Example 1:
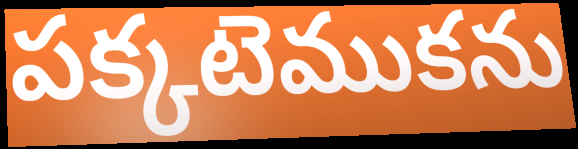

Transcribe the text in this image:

పక్కటెముకను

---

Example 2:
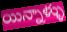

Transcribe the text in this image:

యిన్నాళ్ళు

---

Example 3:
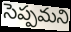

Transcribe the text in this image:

సెప్పమని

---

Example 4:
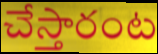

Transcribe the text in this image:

చేస్తారంట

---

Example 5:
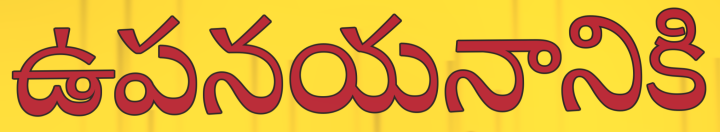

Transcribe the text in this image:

ఉపనయనానికి